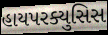
હાયપરક્યુસિસ